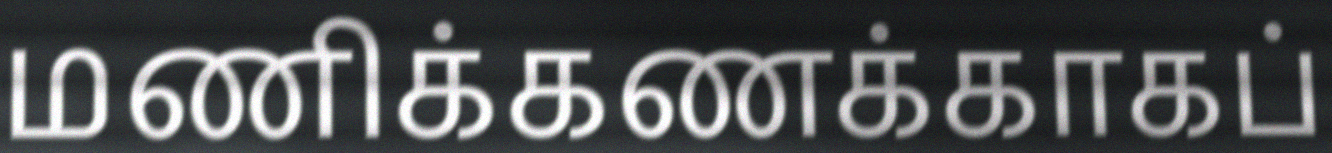
மணிக்கணக்காகப்